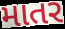
માતર